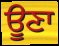
ਊਣਾ